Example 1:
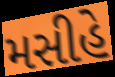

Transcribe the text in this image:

મસીહે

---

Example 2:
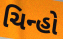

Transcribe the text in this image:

ચિન્હો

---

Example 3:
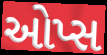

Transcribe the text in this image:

ઓપ્સ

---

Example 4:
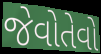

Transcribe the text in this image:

જેવોતેવો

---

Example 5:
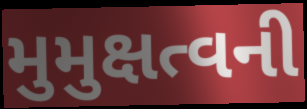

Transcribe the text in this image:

મુમુક્ષત્વની